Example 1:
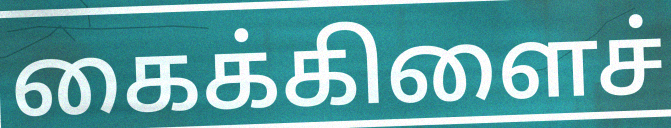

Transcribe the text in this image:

கைக்கிளைச்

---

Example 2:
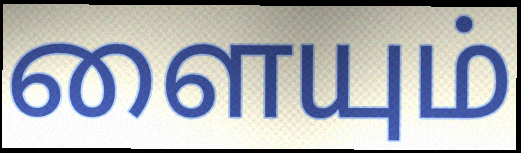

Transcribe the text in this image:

ளையும்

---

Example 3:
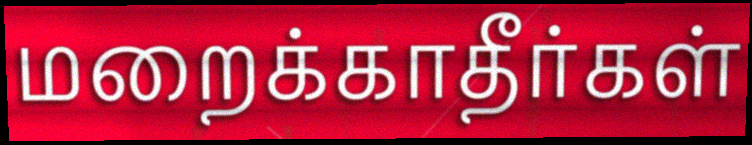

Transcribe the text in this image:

மறைக்காதீர்கள்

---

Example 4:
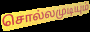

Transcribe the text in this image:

சொல்லமுடியும்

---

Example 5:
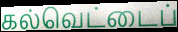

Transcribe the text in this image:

கல்வெட்டைப்